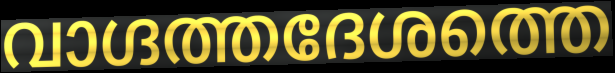
വാഗ്ദത്തദേശത്തെ